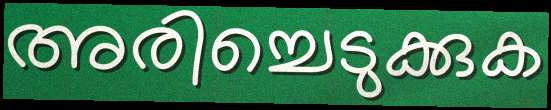
അരിച്ചെടുക്കുക